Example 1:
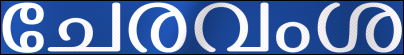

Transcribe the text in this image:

ചേരവംശ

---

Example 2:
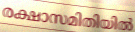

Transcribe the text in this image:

രക്ഷാസമിതിയിൽ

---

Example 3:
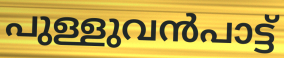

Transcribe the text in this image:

പുള്ളുവൻപാട്ട്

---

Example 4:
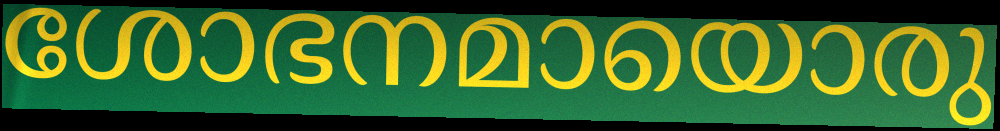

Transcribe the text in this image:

ശോഭനമായൊരു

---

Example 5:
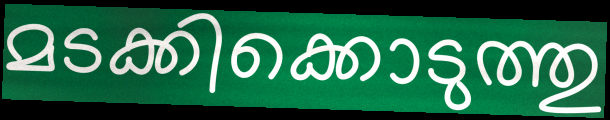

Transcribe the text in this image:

മടക്കിക്കൊടുത്തു